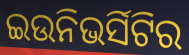
ଇଉନିଭର୍ସିଟିର